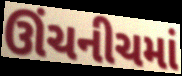
ઊંચનીચમાં